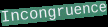
Incongruence